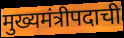
मुख्यमंत्रीपदाची